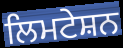
ਲਿਮਟੇਸ਼ਨ